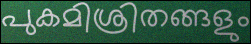
പുകമിശ്രിതങ്ങളും